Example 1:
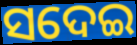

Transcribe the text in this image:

ସଦେଇ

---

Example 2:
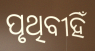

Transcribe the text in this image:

ପୃଥିବୀହିଁ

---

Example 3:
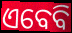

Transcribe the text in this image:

ଏବେବି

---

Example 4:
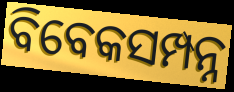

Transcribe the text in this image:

ବିବେକସମ୍ପନ୍ନ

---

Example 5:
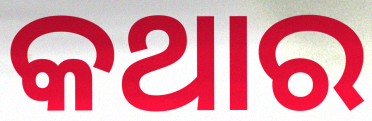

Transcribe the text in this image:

କଥାର